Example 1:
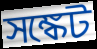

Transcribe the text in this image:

সঙ্কেট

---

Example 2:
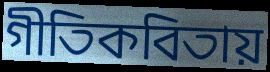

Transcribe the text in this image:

গীতিকবিতায়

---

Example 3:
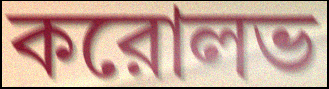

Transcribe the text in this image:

করোলভ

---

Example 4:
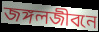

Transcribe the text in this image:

জঙ্গলজীবনে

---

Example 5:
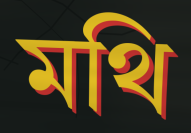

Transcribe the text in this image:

মথি